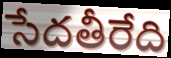
సేదతీరేది